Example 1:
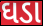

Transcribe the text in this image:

ઘડા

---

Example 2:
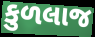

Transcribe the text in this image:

કુળલાજ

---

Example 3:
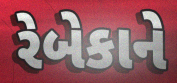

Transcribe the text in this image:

રેબેકાને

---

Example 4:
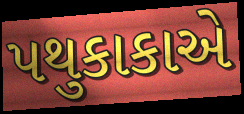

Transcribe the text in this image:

પથુકાકાએ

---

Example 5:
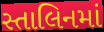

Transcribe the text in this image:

સ્તાલિનમાં